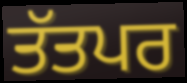
ਤੱਤਪਰ